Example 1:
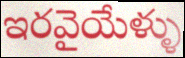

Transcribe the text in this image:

ఇరవైయేళ్ళు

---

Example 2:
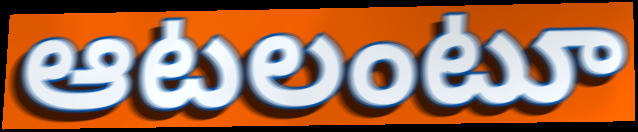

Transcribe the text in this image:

ఆటలంటూ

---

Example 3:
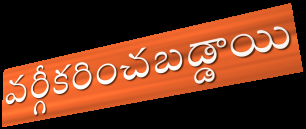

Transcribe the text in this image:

వర్గీకరించబడ్డాయి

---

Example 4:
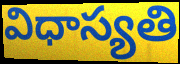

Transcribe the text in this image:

విధాస్యతి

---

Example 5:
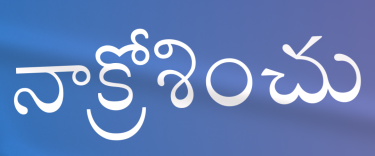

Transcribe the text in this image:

నాక్రోశించు